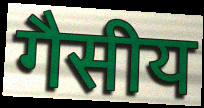
गैसीय